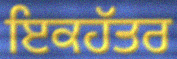
ਇਕਹੱਤਰ